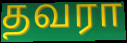
தவரா